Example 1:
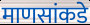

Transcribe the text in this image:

माणसांकडे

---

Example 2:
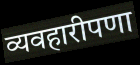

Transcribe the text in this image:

व्यवहारीपणा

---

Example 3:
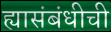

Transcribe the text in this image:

ह्यासंबंधीची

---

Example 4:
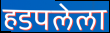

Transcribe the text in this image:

हडपलेला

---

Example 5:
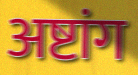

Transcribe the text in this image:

अष्टांग